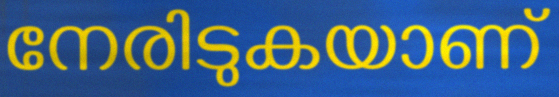
നേരിടുകയാണ്